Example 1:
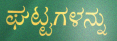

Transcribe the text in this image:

ಘಟ್ಟಗಳನ್ನು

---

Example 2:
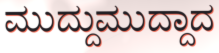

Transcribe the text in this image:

ಮುದ್ದುಮುದ್ದಾದ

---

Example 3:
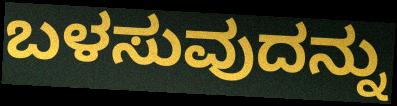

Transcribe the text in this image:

ಬಳಸುವುದನ್ನು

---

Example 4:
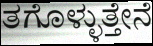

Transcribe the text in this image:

ತಗೊಳ್ಳುತ್ತೇನೆ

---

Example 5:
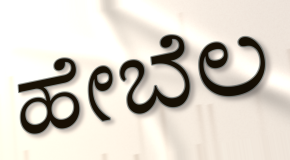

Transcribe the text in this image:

ಹೇಬೆಲ